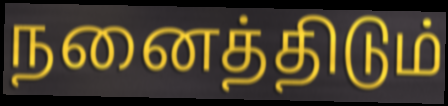
நனைத்திடும்